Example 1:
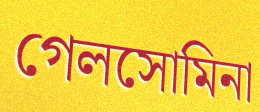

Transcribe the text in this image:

গেলসোমিনা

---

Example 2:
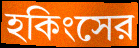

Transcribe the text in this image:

হকিংসের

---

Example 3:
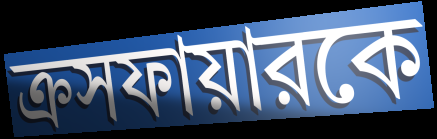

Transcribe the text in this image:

ক্রসফায়ারকে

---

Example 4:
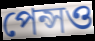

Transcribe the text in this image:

পেন্সও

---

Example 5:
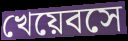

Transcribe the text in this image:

খেয়েবসে